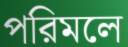
পরিমলে